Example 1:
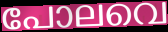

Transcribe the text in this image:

പോലവെ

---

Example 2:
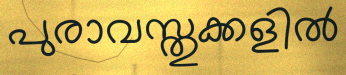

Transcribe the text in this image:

പുരാവസ്തുക്കളിൽ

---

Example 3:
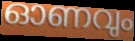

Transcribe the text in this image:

ഓണവും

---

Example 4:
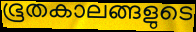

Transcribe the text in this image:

ഭൂതകാലങ്ങളുടെ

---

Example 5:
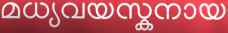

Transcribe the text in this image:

മധ്യവയസ്കനായ